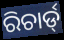
ରିଚାର୍ଡ୍